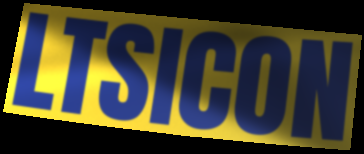
LTSICON